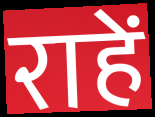
राहें